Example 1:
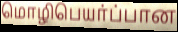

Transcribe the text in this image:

மொழிபெயர்ப்பான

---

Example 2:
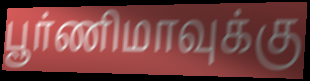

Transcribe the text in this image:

பூர்ணிமாவுக்கு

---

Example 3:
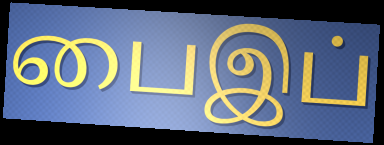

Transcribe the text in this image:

பைஇப்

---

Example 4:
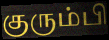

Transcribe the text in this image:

குரும்பி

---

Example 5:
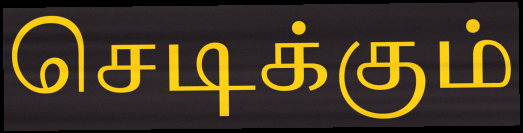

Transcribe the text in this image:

செடிக்கும்